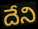
దేని